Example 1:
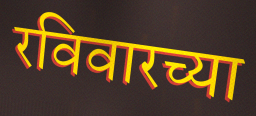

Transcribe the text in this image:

रविवारच्या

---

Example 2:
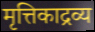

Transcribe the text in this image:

मृत्तिकाद्रव्य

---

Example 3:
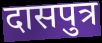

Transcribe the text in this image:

दासपुत्र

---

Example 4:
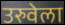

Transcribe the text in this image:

उरुवेला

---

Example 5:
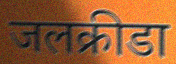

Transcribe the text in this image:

जलक्रीडा